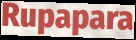
Rupapara